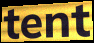
tent